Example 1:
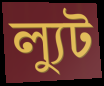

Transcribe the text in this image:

ল্যুট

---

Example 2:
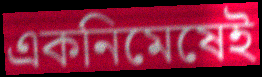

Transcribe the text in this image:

একনিমেষেই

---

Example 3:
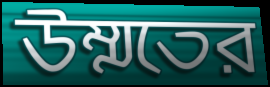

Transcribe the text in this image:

উম্মতের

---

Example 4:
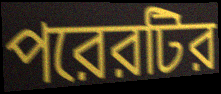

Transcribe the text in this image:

পরেরটির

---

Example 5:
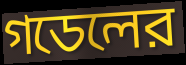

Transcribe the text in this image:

গডেলের